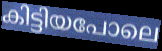
കിട്ടിയപോലെ